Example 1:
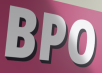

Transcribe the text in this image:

BPO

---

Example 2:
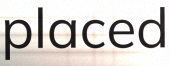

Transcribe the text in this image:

placed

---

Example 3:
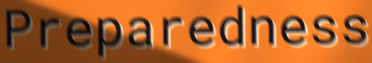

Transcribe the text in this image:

Preparedness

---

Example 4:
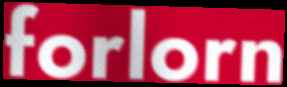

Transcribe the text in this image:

forlorn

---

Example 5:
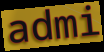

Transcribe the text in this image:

admi